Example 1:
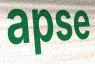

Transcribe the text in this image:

apse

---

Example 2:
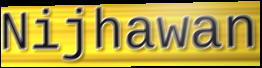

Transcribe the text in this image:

Nijhawan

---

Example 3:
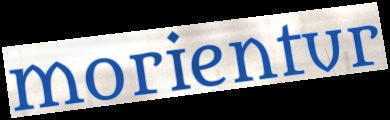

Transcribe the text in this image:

morientur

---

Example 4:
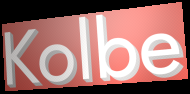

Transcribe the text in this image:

Kolbe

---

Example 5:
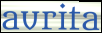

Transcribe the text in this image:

aurita